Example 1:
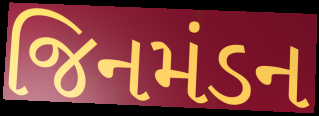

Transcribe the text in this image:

જિનમંડન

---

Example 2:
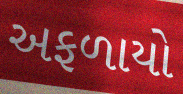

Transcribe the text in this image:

અફળાયો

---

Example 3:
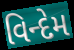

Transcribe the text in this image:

વિન્દેમ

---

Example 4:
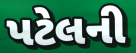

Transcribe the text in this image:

પટેલની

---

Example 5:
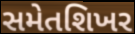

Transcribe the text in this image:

સમેતશિખર